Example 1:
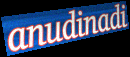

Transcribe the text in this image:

anudinadi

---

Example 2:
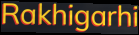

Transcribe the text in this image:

Rakhigarhi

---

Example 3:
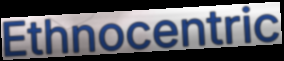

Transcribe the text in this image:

Ethnocentric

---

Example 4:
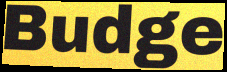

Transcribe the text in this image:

Budge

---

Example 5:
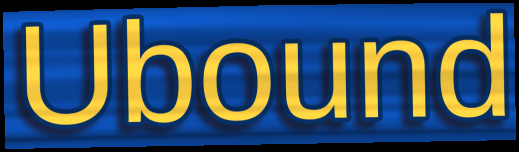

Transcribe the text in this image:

Ubound